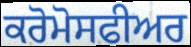
ਕਰੋਮੋਸਫੀਅਰ